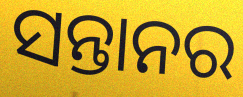
ସନ୍ତାନର